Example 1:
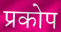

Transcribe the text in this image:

प्रकोप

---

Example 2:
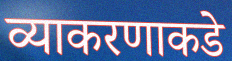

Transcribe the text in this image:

व्याकरणाकडे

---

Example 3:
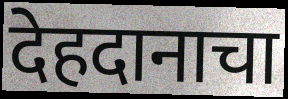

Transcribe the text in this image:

देहदानाचा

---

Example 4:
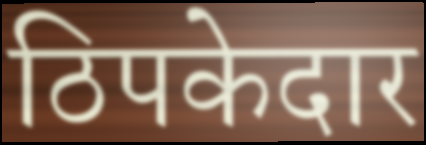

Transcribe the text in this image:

ठिपकेदार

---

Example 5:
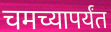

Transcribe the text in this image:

चमच्यापर्यंत